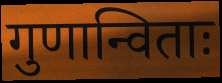
गुणान्विताः